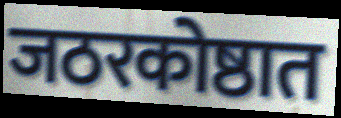
जठरकोष्ठात